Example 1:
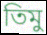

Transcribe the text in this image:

তিমু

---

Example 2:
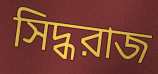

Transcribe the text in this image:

সিদ্ধরাজ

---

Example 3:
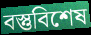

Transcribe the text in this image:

বস্তুবিশেষ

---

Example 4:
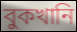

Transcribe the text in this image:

বুকখানি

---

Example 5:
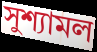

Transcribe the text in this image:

সুশ্যামল